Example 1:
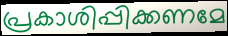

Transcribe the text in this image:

പ്രകാശിപ്പിക്കണമേ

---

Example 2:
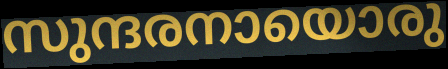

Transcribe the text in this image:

സുന്ദരനായൊരു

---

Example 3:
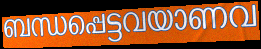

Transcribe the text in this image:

ബന്ധപ്പെട്ടവയാണവ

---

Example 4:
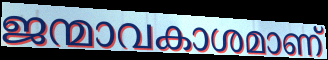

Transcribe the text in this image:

ജന്മാവകാശമാണ്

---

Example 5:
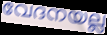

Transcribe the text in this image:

വേദനയല്ല